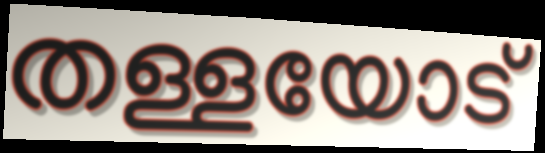
തള്ളയോട്